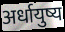
अर्धायुष्य